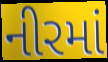
નીરમાં